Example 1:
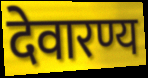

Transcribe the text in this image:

देवारण्य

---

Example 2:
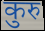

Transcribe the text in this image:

कुरु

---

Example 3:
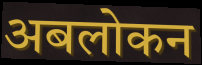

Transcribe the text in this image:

अबलोकन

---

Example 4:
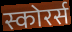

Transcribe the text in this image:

स्कोरर्स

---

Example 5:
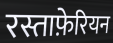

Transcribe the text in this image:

रस्ताफ़ेरियन